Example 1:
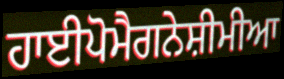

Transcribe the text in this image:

ਹਾਈਪੋਮੈਗਨੇਸ਼ੀਮੀਆ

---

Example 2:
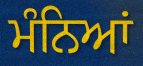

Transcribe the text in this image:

ਮੰਨਿਆਂ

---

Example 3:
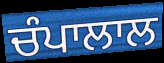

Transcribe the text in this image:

ਚੰਪਾਲਾਲ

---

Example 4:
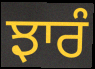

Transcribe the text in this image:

ਝਾਰੰ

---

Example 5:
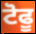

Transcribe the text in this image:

ਟੋਫੂ